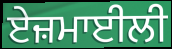
ਏਜ਼ਮਾਈਲੀ